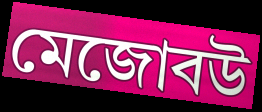
মেজোবউ